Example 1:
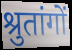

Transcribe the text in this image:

श्रुतांगों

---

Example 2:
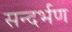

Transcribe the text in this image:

सन्दर्भण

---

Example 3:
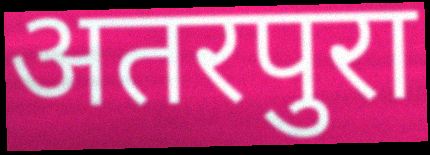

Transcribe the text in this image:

अतरपुरा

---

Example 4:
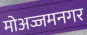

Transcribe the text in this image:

मोअज्जमनगर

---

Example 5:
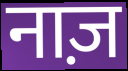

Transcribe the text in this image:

नाज़